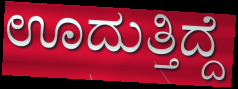
ಊದುತ್ತಿದ್ದೆ